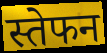
स्तेफन